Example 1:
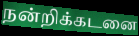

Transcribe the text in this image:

நன்றிக்கடனை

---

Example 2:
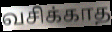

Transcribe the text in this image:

வசிக்காத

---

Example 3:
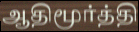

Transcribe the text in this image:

ஆதிமூர்த்தி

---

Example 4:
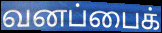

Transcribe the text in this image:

வனப்பைக்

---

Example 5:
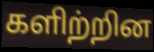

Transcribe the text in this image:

களிற்றின